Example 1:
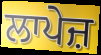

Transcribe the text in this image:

ਲਾਪੇਜ਼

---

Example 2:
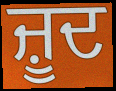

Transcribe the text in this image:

ਜ਼ੂਦ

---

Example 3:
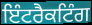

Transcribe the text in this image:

ਇੰਟਰੈਕਟਿੰਗ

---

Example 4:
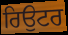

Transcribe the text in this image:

ਰਿਉਟਰ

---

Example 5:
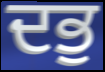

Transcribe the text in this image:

ਦਭੁ